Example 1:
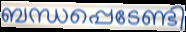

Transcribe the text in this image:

ബന്ധപ്പെടേണ്ടി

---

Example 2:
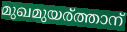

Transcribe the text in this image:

മുഖമുയര്ത്താന്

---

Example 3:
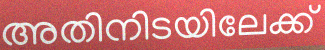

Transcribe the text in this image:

അതിനിടയിലേക്ക്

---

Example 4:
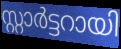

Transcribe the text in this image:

സ്റ്റാർട്ടറായി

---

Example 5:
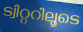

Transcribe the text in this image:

ട്വിറ്ററിലൂടെ